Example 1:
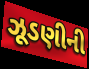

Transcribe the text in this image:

ઝૂડણીની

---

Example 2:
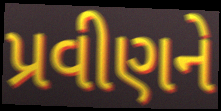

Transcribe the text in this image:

પ્રવીણને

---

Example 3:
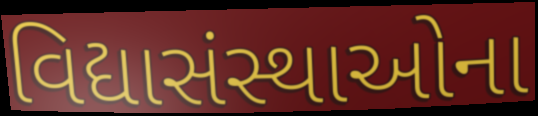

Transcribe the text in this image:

વિદ્યાસંસ્થાઓના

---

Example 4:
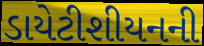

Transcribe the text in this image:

ડાયેટીશીયનની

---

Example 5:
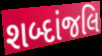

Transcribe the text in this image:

શબ્દાંજલિ